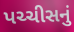
પચ્ચીસનું